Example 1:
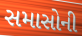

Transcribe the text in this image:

સમાસોની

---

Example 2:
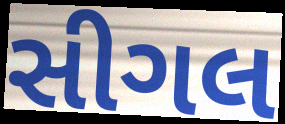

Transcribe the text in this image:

સીગલ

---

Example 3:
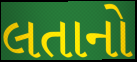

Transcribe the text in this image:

લતાનો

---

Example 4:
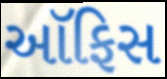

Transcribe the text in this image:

આૅફિસ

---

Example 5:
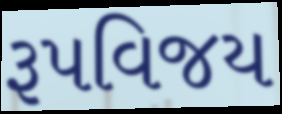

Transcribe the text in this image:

રૂપવિજય